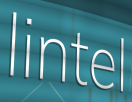
lintel